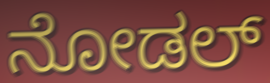
ನೋಡಲ್